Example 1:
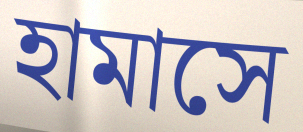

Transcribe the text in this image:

হামাসে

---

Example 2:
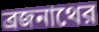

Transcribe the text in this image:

ব্রজনাথের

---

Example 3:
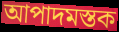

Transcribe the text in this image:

আপাদমস্তক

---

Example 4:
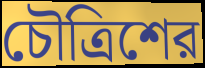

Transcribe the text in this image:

চৌত্রিশের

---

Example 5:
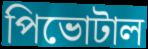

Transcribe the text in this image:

পিভোটাল